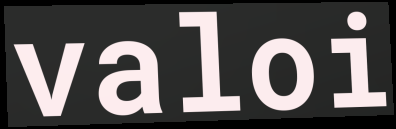
valoi